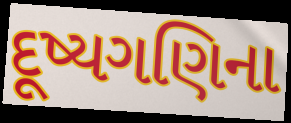
દૂષ્યગણિના